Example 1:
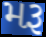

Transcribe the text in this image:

મરૂ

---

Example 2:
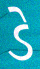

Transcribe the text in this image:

ડે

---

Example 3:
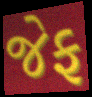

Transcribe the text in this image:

જેફ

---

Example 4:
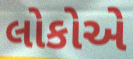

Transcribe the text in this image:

લોકોએ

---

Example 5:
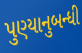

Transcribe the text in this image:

પુણ્યાનુબન્ધી